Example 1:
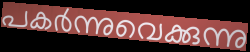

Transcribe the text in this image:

പകർന്നുവെക്കുന്നു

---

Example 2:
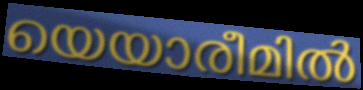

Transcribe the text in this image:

യെയാരീമിൽ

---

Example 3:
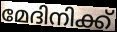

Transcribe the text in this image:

മേദിനിക്ക്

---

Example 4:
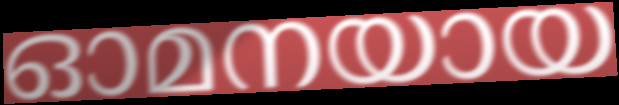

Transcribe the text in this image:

ഓമനയായ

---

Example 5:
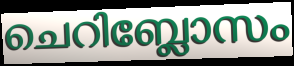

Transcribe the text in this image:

ചെറിബ്ലോസം